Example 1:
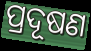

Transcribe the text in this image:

ପ୍ରଦୂଷଣ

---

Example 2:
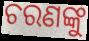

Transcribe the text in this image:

ଚରଣଙ୍କୁ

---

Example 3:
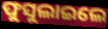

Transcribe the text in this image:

ଫୁସୁଲାଇଲେ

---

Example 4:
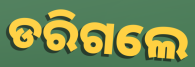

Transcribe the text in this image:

ଡରିଗଲେ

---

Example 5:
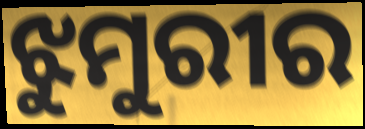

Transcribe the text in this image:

ଝୁମୁରୀର